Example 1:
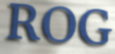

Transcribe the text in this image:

ROG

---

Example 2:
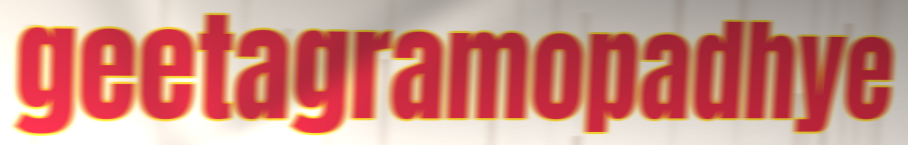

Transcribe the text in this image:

geetagramopadhye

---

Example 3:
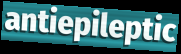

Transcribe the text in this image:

antiepileptic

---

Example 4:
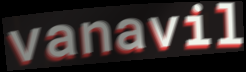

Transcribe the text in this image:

vanavil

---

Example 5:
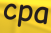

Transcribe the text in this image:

cpa